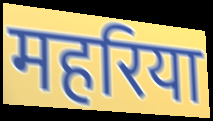
महरिया